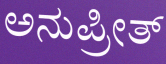
ಅನುಪ್ರೀತ್